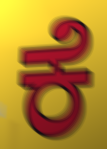
ಕೆ